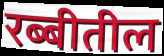
रब्बीतील